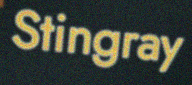
Stingray